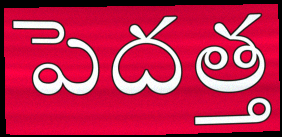
పెదత్త